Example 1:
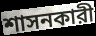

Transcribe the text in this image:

শাসনকারী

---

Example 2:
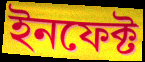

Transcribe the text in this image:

ইনফেক্ট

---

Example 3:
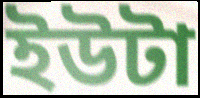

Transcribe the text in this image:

ইউটা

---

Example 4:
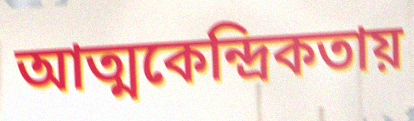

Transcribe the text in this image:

আত্মকেন্দ্রিকতায়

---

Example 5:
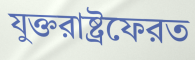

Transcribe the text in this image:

যুক্তরাষ্ট্রফেরত